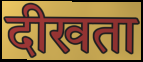
दीखता